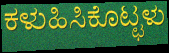
ಕಳುಹಿಸಿಕೊಟ್ಟಳು